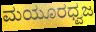
ಮಯೂರಧ್ವಜ